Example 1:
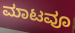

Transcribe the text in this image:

ಮಾಟವೂ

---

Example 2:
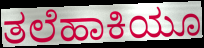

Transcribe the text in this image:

ತಲೆಹಾಕಿಯೂ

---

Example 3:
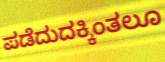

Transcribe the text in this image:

ಪಡೆದುದಕ್ಕಿಂತಲೂ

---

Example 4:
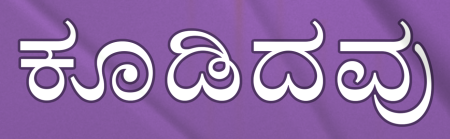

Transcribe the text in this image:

ಕೂಡಿದವು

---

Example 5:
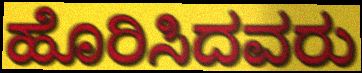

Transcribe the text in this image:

ಹೊರಿಸಿದವರು